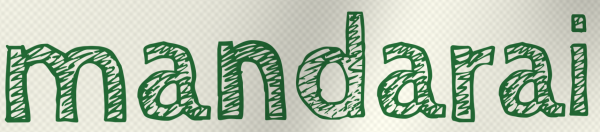
mandarai